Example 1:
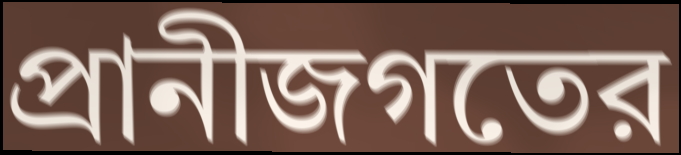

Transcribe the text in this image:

প্রানীজগতের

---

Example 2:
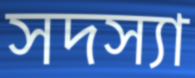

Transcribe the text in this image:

সদস্যা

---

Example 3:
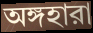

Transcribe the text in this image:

অঙ্গহারা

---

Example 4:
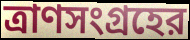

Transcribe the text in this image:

ত্রাণসংগ্রহের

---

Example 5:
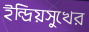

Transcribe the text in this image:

ইন্দ্রিয়সুখের